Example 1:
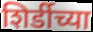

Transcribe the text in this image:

शिर्डीच्या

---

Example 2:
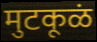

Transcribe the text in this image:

मुटकूळं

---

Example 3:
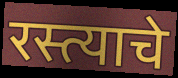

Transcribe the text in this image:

रस्त्याचे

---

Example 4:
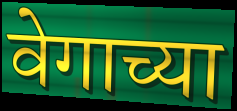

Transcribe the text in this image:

वेगाच्या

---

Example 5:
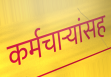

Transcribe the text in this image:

कर्मचाऱ्यांसह